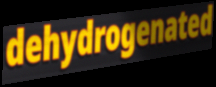
dehydrogenated